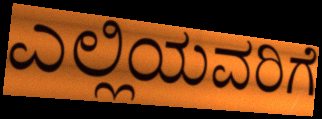
ಎಲ್ಲಿಯವರಿಗೆ